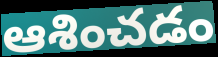
ఆశించడం